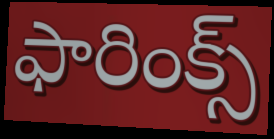
ఫారింక్స్